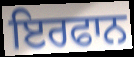
ਇਰਫਾਨ